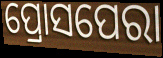
ପ୍ରୋସପେରା